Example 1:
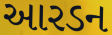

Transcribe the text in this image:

આરડન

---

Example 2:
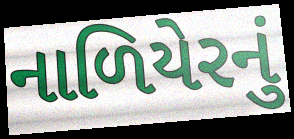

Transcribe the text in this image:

નાળિયેરનું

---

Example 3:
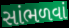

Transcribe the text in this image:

સાંભળવાં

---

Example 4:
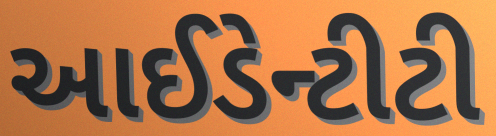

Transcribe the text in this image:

આઈડેન્ટીટી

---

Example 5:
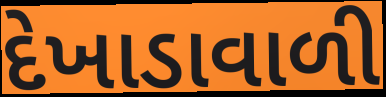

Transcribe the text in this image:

દેખાડાવાળી